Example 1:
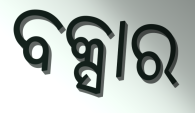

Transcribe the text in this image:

ବକ୍ସାର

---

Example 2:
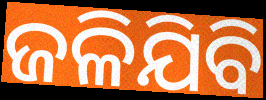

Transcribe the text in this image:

ଜଳିଯିବି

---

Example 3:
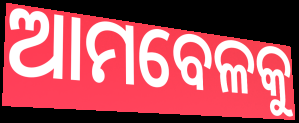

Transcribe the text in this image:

ଆମବେଳକୁ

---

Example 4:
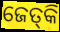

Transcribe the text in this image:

ଜେତ୍‌କି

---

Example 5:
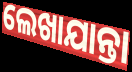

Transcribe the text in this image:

ଲେଖାଯାନ୍ତା